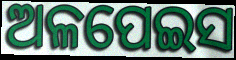
ଅଳପେଇସ